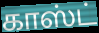
காஸ்ட்